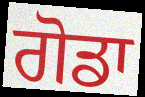
ਗੋਡਾ